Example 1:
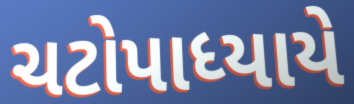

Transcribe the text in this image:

ચટોપાધ્યાયે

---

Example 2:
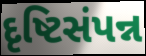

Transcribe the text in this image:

દૃષ્ટિસંપન્ન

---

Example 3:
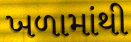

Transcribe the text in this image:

ખળામાંથી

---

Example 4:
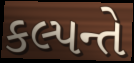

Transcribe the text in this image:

કલ્પન્તે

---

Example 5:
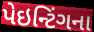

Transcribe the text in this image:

પેઇન્ટિંગના